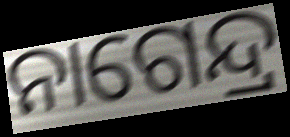
ନାଗେନ୍ଦ୍ର